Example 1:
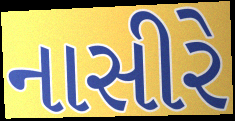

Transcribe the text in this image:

નાસીરે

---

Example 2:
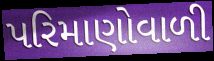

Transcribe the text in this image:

પરિમાણોવાળી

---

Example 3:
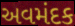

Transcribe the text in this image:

અવમંદક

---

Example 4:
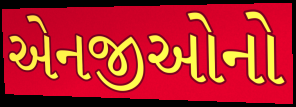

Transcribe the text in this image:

એનજીઓનો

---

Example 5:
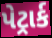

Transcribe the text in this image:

પેટ્રાર્ક